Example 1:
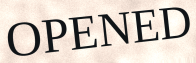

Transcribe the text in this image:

OPENED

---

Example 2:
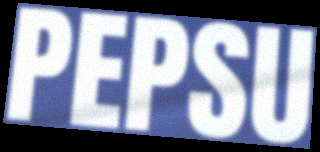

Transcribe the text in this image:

PEPSU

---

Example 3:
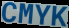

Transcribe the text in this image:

CMYK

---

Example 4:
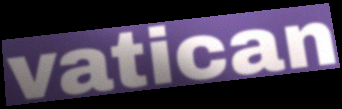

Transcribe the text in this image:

vatican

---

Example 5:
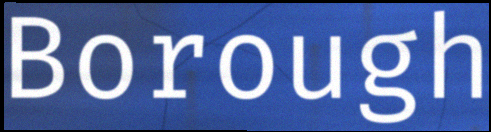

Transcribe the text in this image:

Borough